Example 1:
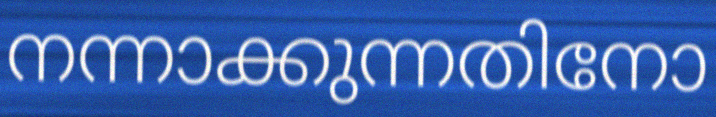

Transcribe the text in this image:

നന്നാക്കുന്നതിനോ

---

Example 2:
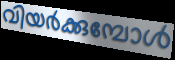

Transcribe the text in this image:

വിയർക്കുമ്പോൾ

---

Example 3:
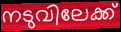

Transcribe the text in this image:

നടുവിലേക്ക്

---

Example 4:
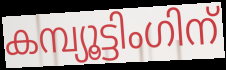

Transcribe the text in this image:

കമ്പ്യൂട്ടിംഗിന്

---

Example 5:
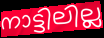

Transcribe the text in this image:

നാട്ടിലില്ല